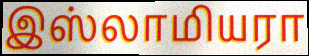
இஸ்லாமியரா